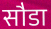
सौडा